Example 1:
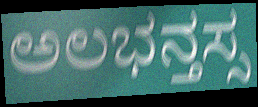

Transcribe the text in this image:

ಅಲಭನ್ತಸ್ಸ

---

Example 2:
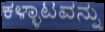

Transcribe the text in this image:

ಕಳ್ಳಾಟವನ್ನು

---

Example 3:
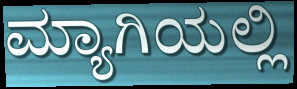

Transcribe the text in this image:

ಮ್ಯಾಗಿಯಲ್ಲಿ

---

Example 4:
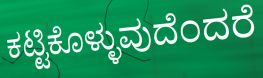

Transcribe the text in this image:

ಕಟ್ಟಿಕೊಳ್ಳುವುದೆಂದರೆ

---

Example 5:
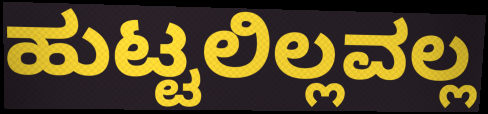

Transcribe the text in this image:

ಹುಟ್ಟಲಿಲ್ಲವಲ್ಲ